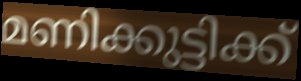
മണിക്കുട്ടിക്ക്